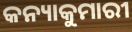
କନ୍ୟାକୁମାରୀ